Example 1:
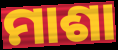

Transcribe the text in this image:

ମାଶା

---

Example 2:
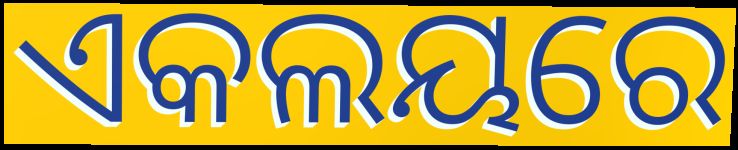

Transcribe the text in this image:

ଏକଲୟରେ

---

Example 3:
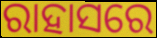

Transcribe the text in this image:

ରାହାସରେ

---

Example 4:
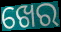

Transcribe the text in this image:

ଖେର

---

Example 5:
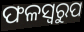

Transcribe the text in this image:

ଫଳସ୍ୱରୁପ